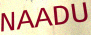
NAADU